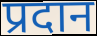
प्रदान